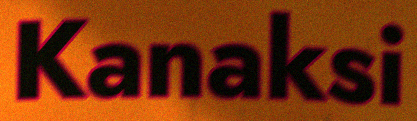
Kanaksi